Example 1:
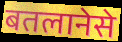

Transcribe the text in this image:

बतलानेसे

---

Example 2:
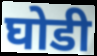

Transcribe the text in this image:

घोडी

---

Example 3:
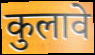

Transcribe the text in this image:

कुलावे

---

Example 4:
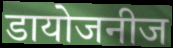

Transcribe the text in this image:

डायोजनीज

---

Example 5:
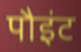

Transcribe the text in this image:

पौइंट